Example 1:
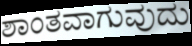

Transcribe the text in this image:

ಶಾಂತವಾಗುವುದು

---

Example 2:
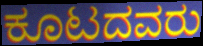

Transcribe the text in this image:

ಕೂಟದವರು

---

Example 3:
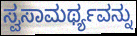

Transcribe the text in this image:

ಸ್ವಸಾಮರ್ಥ್ಯವನ್ನು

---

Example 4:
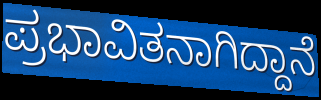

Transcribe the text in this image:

ಪ್ರಭಾವಿತನಾಗಿದ್ದಾನೆ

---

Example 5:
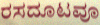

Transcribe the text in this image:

ರಸದೂಟವೂ